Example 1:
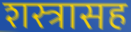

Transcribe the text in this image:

शस्त्रासह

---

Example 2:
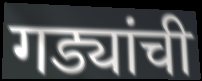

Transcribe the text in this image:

गड्यांची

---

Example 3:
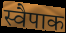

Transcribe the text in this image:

स्वैपाक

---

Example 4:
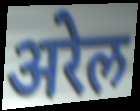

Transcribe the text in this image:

अरेल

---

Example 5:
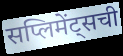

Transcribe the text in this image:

सप्लिमेंट्सची